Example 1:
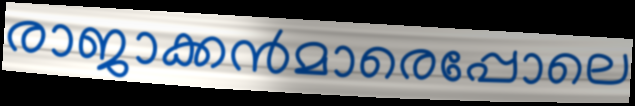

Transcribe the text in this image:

രാജാക്കൻമാരെപ്പോലെ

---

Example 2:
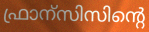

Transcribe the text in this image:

ഫ്രാന്സിസിന്റെ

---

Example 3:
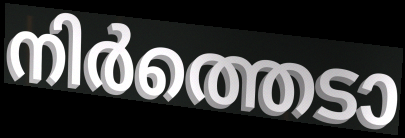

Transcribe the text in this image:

നിർത്തെടാ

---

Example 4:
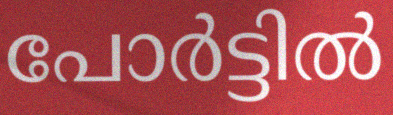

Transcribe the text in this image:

പോർട്ടിൽ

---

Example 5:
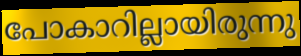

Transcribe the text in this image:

പോകാറില്ലായിരുന്നു